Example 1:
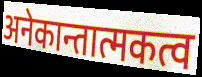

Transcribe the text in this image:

अनेकान्तात्मकत्व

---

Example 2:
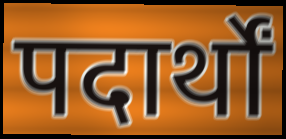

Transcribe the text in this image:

पदार्थों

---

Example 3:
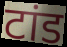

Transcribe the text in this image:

टांड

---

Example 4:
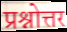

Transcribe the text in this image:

प्रश्नोत्तर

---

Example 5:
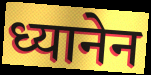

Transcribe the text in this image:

ध्यानेन